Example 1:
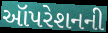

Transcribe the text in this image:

ઑપરેશનની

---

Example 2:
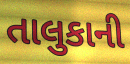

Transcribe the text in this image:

તાલુકાની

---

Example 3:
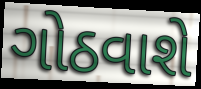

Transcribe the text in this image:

ગોઠવાશે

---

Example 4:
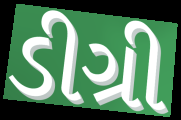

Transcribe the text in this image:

ડીગ્રી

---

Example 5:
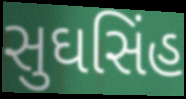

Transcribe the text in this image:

સુઘસિંહ